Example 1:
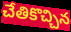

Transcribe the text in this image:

చేతికొచ్చిన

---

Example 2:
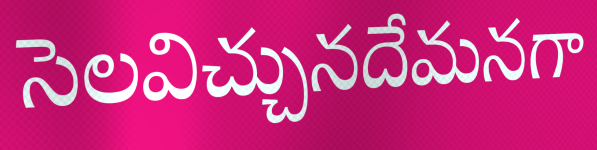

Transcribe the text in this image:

సెలవిచ్చునదేమనగా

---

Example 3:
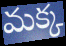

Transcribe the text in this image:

మక్క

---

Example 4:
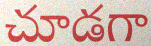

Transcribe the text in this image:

చూడగా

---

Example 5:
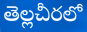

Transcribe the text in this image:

తెల్లచీరలో